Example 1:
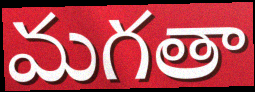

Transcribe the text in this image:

మగతా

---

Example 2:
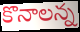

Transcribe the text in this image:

కొనాలన్న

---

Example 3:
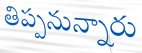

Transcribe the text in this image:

తిప్పనున్నారు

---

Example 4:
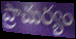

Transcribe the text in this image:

ప్రాచుర్యం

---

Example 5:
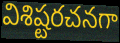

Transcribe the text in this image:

విశిష్టరచనగా